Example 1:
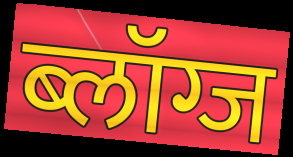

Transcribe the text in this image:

ब्लॉग्ज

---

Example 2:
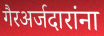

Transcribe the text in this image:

गैरअर्जदारांना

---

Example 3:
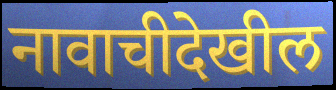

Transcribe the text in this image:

नावाचीदेखील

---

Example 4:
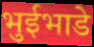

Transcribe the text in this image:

भुईभाडे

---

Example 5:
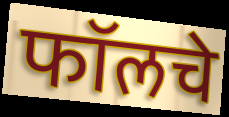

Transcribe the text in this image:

फॉलचे